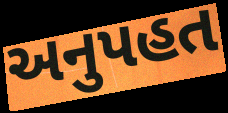
અનુપહત